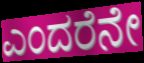
ಎಂದರೆನೇ